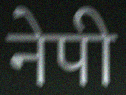
नेपी